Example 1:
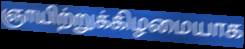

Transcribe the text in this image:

ஞாயிற்றுக்கிழமையாக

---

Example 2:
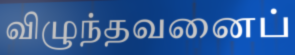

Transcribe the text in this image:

விழுந்தவனைப்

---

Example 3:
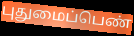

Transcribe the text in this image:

புதுமைப்பெண்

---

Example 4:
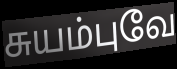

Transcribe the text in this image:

சுயம்புவே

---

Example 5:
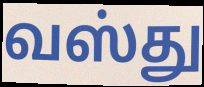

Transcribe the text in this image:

வஸ்து